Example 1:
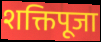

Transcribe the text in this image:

शक्तिपूजा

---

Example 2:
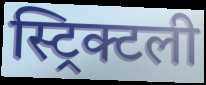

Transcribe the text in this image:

स्ट्रिक्टली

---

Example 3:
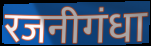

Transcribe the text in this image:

रजनीगंधा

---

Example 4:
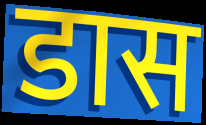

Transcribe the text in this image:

डास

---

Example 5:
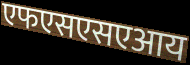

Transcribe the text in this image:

एफएसएसएआय